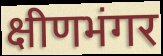
क्षीणभंगर